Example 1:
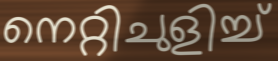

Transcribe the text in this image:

നെറ്റിചുളിച്ച്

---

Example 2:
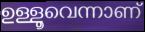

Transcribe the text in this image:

ഉള്ളൂവെന്നാണ്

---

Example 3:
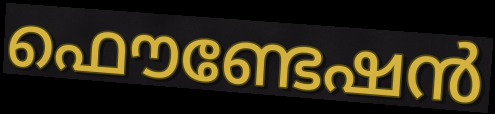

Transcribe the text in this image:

ഫൌണ്ടേഷൻ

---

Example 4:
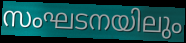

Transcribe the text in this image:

സംഘടനയിലും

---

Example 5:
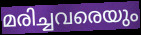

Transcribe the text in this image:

മരിച്ചവരെയും